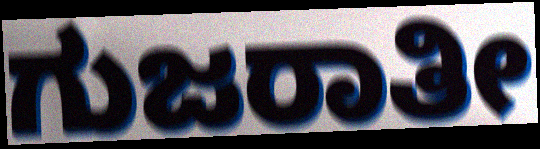
ಗುಜರಾತೀ